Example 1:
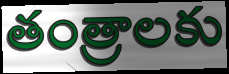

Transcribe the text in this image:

తంత్రాలకు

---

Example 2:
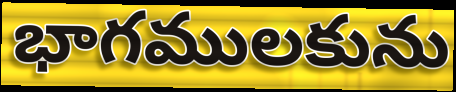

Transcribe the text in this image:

భాగములకును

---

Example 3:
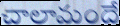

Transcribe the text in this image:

చాలామందే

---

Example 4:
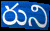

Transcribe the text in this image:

రుని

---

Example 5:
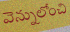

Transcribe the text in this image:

వెన్నులోంచి